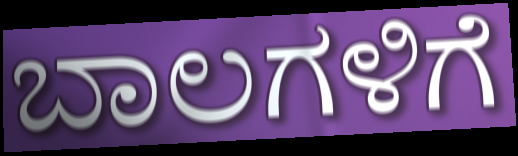
ಬಾಲಗಳಿಗೆ